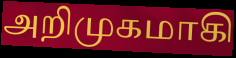
அறிமுகமாகி